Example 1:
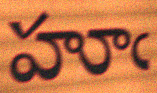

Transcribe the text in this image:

హూఁ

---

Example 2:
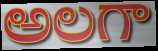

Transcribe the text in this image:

అలగా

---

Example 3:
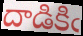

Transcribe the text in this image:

దాడికిఁ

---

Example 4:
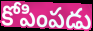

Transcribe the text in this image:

కోపింపడు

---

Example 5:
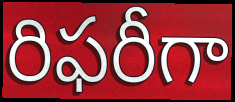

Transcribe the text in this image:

రిఫరీగా